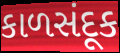
કાળસંદૂક